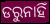
ଡରୁନାହିଁ